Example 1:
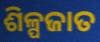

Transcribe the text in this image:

ଶିଳ୍ପଜାତ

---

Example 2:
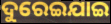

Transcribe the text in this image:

ଦୁରେଇଯାଇ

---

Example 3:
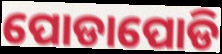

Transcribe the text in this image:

ପୋଡାପୋଡି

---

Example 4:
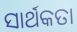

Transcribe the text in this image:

ସାର୍ଥକତା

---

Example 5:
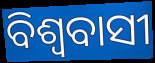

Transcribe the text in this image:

ବିଶ୍ୱବାସୀ